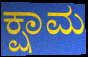
ಕ್ಷಾಮ